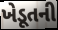
ખેડૂતની